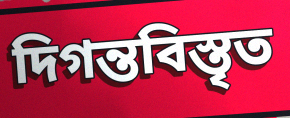
দিগন্তবিস্তৃত